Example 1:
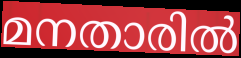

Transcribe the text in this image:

മനതാരിൽ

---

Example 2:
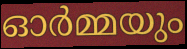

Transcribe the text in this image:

ഓർമ്മയും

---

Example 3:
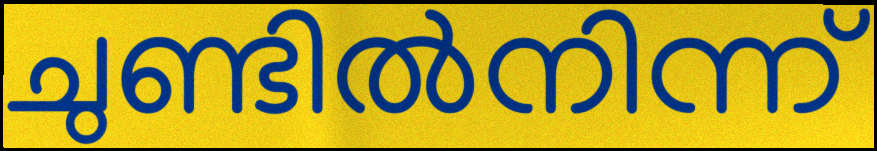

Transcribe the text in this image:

ചുണ്ടിൽനിന്ന്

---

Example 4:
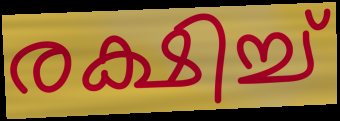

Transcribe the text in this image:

രക്ഷിച്ച്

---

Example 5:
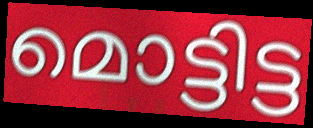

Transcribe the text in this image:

മൊട്ടിട്ട